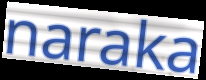
naraka